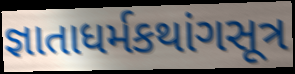
જ્ઞાતાધર્મકથાંગસૂત્ર